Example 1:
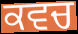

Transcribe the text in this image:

ਕਵਚ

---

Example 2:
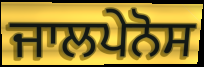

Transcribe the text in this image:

ਜਾਲਪੇਨੋਸ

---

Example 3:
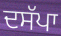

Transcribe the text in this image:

ਦਸੱਪਾ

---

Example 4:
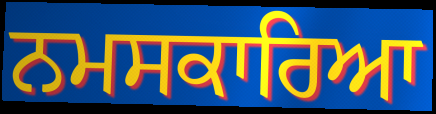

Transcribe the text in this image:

ਨਮਸਕਾਰਿਆ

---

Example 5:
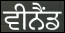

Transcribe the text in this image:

ਵੀਨੈਂਡ